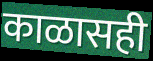
काळासही